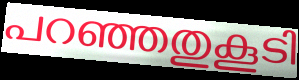
പറഞ്ഞതുകൂടി